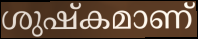
ശുഷ്കമാണ്